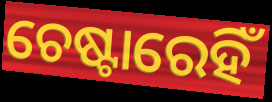
ଚେଷ୍ଟାରେହିଁ